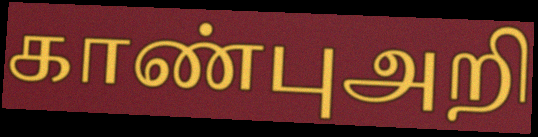
காண்புஅறி